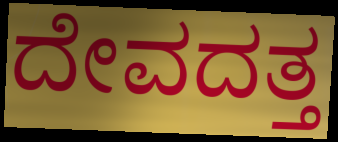
ದೇವದತ್ತ